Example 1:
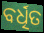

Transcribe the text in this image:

ବର୍ଧିତ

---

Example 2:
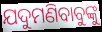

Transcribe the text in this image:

ଯଦୁମଣିବାବୁଙ୍କୁ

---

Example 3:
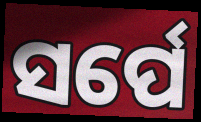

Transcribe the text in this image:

ସର୍ପେ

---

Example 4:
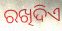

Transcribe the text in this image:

ରଖିଦିଏ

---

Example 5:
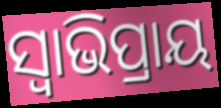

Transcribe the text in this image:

ସ୍ଵାଭିପ୍ରାୟ